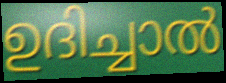
ഉദിച്ചാൽ